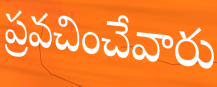
ప్రవచించేవారు